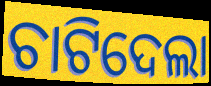
ଚାଟିଦେଲା